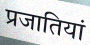
प्रजातियां